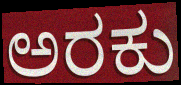
ಅರಕು